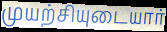
முயற்சியுடையார்